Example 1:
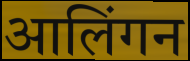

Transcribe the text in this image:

आलिंगन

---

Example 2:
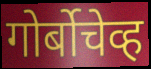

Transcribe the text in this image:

गोर्बोचेव्ह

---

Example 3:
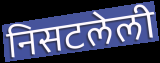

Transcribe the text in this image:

निसटलेली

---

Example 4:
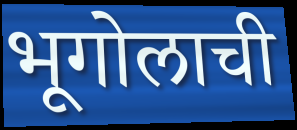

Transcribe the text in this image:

भूगोलाची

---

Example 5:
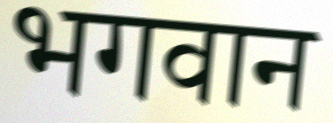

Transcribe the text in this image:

भगवान